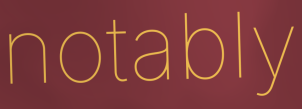
notably